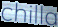
chilla